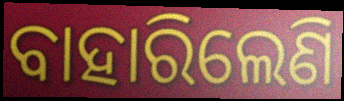
ବାହାରିଲେଣି